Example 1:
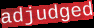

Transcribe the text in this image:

adjudged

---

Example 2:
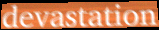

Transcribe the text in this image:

devastation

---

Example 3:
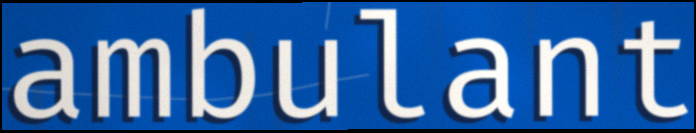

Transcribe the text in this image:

ambulant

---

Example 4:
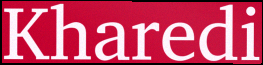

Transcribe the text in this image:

Kharedi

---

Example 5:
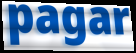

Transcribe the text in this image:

pagar